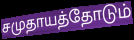
சமுதாயத்தோடும்